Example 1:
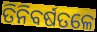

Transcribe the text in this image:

ତିନିବର୍ଷତଳେ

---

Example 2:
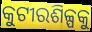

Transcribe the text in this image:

କୁଟୀରଶିଳ୍ପକୁ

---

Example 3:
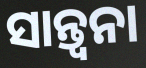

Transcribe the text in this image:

ସାନ୍ତ୍ୱନା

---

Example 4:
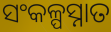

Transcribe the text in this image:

ସଂକଳ୍ପସ୍ନାତ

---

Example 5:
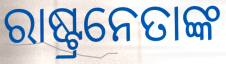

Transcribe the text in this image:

ରାଷ୍ଟ୍ରନେତାଙ୍କ